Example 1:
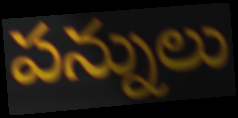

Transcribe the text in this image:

పన్నులు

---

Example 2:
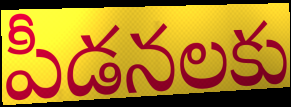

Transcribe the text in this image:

పీడనలకు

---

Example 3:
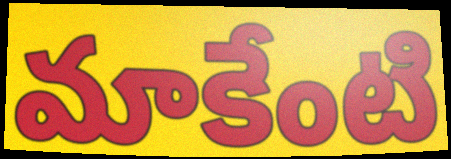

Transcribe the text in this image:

మాకేంటి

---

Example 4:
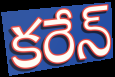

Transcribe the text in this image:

కరేన్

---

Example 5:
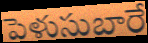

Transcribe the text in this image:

పెళుసుబారే